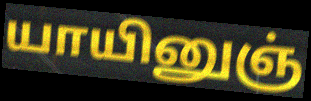
யாயினுஞ்